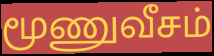
மூணுவீசம்